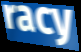
racy